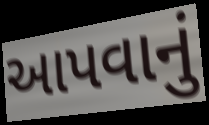
આપવાનું